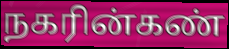
நகரின்கண்